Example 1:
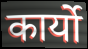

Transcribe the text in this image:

कार्यो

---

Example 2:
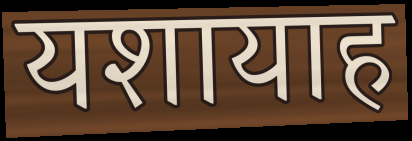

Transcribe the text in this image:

यशायाह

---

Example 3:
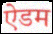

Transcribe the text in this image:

ऐडम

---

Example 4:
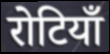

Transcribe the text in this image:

रोटियाँ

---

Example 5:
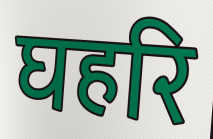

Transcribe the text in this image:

घहरि